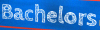
Bachelors